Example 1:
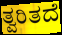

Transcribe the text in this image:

ತ್ವರಿತದೆ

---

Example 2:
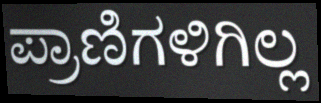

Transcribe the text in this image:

ಪ್ರಾಣಿಗಳಿಗಿಲ್ಲ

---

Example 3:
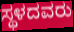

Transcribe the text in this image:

ಸ್ಥಳದವರು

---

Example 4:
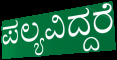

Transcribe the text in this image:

ಪಲ್ಯವಿದ್ದರೆ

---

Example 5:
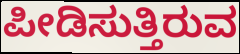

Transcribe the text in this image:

ಪೀಡಿಸುತ್ತಿರುವ